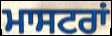
ਮਾਸਟਰਾਂ